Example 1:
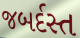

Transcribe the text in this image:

જબર્દસ્ત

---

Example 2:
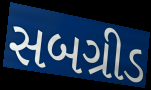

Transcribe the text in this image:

સબગ્રીડ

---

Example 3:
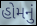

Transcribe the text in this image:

હોમનું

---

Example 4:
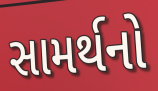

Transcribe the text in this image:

સામર્થનો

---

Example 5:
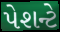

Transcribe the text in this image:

પેશન્ટે